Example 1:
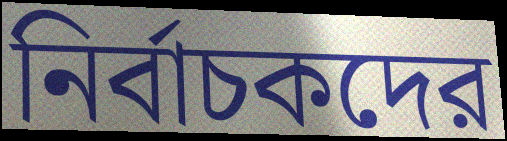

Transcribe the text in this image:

নির্বাচকদের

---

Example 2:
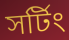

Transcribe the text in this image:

সর্টিং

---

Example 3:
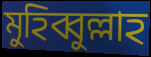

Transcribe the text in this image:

মুহিব্বুল্লাহ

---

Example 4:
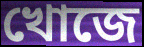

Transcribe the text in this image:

খোজে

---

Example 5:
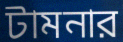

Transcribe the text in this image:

টামনার